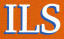
ILS